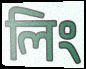
লিং